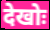
देखोः